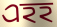
এহহ